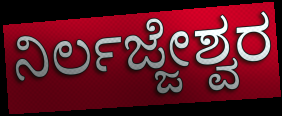
ನಿರ್ಲಜ್ಜೇಶ್ವರ